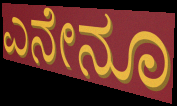
ಎನೇನೂ